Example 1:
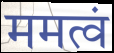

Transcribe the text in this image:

ममत्वं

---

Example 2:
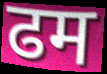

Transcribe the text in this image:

ढम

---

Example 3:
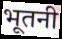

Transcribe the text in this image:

भूतनी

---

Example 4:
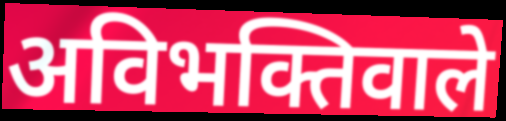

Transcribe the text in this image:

अविभक्तिवाले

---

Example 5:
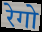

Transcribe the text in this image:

रेगो